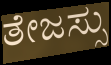
ತೇಜಸ್ಸು